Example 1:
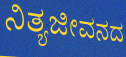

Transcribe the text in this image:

ನಿತ್ಯಜೀವನದ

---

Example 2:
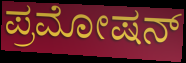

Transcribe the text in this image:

ಪ್ರಮೋಷನ್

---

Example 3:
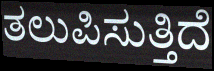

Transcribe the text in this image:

ತಲುಪಿಸುತ್ತಿದೆ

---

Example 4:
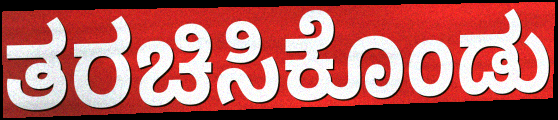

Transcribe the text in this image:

ತರಚಿಸಿಕೊಂಡು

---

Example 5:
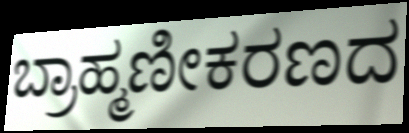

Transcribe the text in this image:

ಬ್ರಾಹ್ಮಣೀಕರಣದ